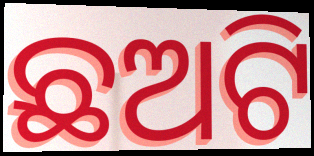
ଛଅଟି